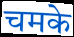
चमके